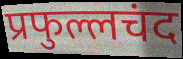
प्रफुल्लचंद